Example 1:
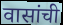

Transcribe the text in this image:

वासांची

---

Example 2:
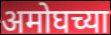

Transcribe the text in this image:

अमोघच्या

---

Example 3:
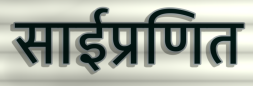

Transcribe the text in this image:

साईप्रणित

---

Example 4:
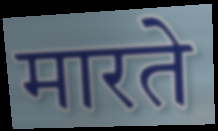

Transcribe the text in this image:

मारते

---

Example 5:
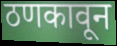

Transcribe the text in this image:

ठणकावून